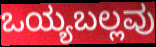
ಒಯ್ಯಬಲ್ಲವು